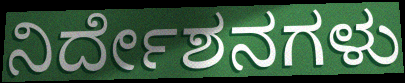
ನಿರ್ದೇಶನಗಳು